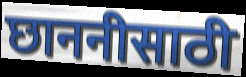
छाननीसाठी